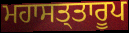
ਮਹਾਸਤ੍ਤਾਰੂਪ